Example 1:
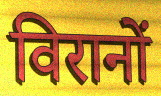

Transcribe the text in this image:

विरानों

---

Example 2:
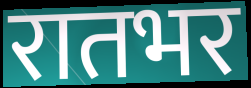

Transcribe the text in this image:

रातभर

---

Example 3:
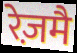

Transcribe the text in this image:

रेज़मै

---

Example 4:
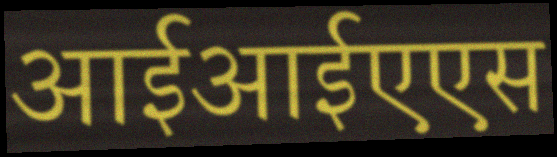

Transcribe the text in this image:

आईआईएएस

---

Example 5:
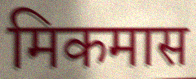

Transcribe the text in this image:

मिकमास